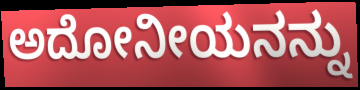
ಅದೋನೀಯನನ್ನು